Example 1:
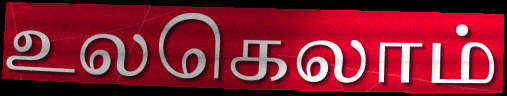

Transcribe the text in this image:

உலகெலாம்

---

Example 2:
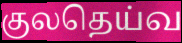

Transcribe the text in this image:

குலதெய்வ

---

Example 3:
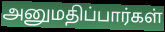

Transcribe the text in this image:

அனுமதிப்பார்கள்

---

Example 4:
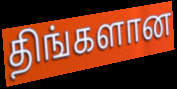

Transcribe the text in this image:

திங்களான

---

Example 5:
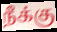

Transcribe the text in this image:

நீக்கு